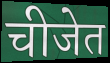
चीजेत